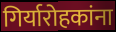
गिर्यारोहकांना